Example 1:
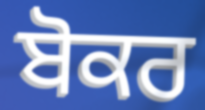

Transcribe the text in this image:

ਬੋਕਰ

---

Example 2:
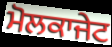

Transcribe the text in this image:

ਮੋਲਕਾਜੇਟ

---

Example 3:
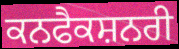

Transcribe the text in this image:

ਕਨਫੈਕਸ਼ਨਰੀ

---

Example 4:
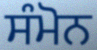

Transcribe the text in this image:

ਸੰਮੋਨ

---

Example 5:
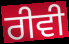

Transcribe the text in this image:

ਰੀਵੀ